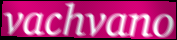
vachvano